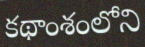
కథాంశంలోని